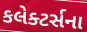
કલેક્ટર્સના